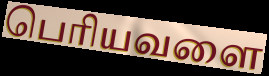
பெரியவளை